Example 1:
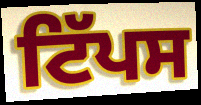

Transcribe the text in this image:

ਟਿੱਪਸ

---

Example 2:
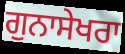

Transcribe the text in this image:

ਗੁਨਾਸੇਖਰਾ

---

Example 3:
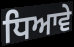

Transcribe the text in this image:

ਧਿਆਵੇ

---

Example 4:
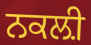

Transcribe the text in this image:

ਨਕਲ਼ੀ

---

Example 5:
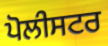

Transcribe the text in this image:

ਪੋਲੀਸਟਰ